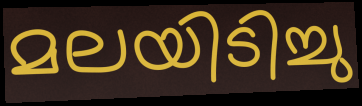
മലയിടിച്ചു